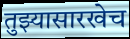
तुझ्यासारखेच